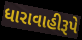
ધારાવાહીરૂપે